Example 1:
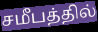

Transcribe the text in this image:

சமீபத்தில்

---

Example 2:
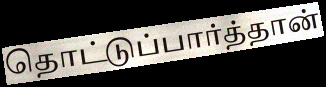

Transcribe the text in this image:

தொட்டுப்பார்த்தான்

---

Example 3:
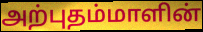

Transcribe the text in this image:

அற்புதம்மாளின்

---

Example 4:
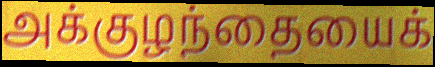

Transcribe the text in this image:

அக்குழந்தையைக்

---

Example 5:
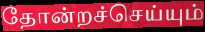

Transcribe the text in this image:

தோன்றச்செய்யும்